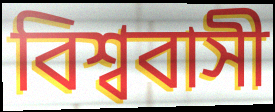
বিশ্ববাসী